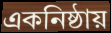
একনিষ্ঠায়